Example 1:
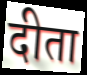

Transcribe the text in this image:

दीता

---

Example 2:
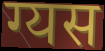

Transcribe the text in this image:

ग्यस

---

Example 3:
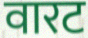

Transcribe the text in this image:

वारट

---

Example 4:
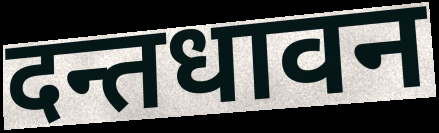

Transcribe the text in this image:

दन्तधावन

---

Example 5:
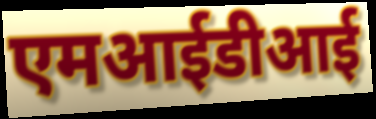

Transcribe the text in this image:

एमआईडीआई